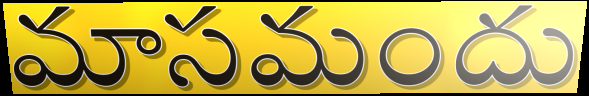
మాసమందు